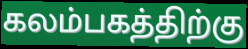
கலம்பகத்திற்கு